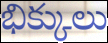
భిక్కులు